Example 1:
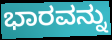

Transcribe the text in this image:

ಭಾರವನ್ನು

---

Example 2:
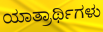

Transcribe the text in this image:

ಯಾತ್ರಾರ್ಥಿಗಳು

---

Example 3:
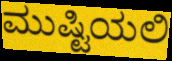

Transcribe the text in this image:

ಮುಷ್ಟಿಯಲಿ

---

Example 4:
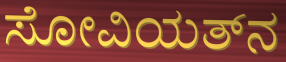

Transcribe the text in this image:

ಸೋವಿಯತ್‌ನ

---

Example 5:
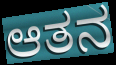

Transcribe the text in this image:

ಆತನ